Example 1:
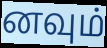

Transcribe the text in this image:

னவும்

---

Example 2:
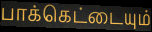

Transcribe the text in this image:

பாக்கெட்டையும்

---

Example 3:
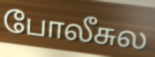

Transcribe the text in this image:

போலீசுல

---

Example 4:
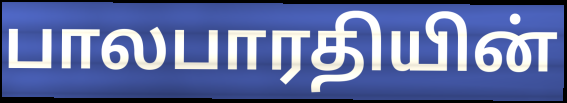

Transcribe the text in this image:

பாலபாரதியின்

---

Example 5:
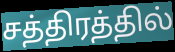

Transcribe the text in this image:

சத்திரத்தில்